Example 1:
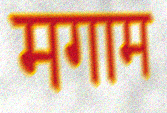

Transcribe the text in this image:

मगाम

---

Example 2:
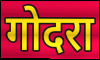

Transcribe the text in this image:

गोदरा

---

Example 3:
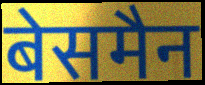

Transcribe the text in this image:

बेसमैन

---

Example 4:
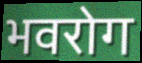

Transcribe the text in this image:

भवरोग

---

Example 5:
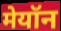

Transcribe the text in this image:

मेयॉन